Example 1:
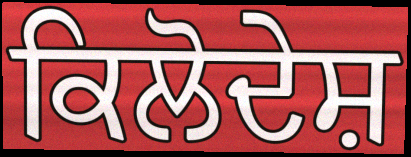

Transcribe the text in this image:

ਕਿਲੋਦੇਸ਼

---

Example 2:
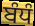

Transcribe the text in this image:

ਬੰਧੰ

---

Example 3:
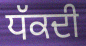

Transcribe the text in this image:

ਧੱਕਦੀ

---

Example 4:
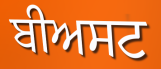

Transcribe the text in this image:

ਬੀਅਸਟ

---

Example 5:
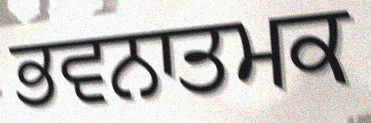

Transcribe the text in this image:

ਭਵਨਾਤਮਕ